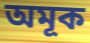
অমূক